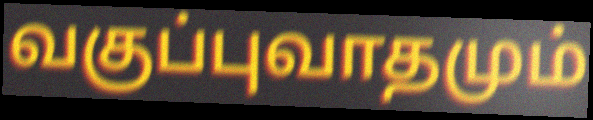
வகுப்புவாதமும்